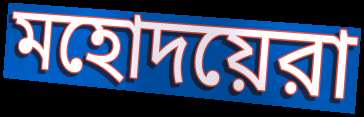
মহোদয়েরা